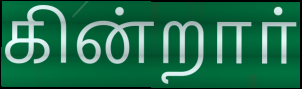
கின்றார்